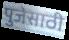
पुजेसाठी